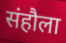
संहौला